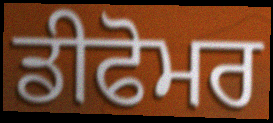
ਡੀਫੋਮਰ